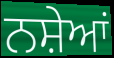
ਨਸ਼ੇਆਂ